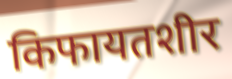
किफायतशीर